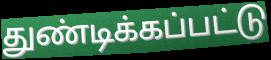
துண்டிக்கப்பட்டு